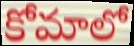
కోమాలో